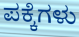
ಪಕ್ಕೆಗಳು